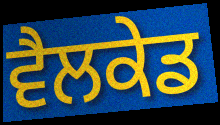
ਵੈਲਕੇਡ